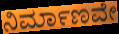
ನಿರ್ಮಾಣವೇ